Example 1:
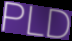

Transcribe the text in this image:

PLD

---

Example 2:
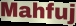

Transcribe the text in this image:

Mahfuj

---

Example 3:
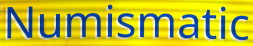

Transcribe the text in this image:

Numismatic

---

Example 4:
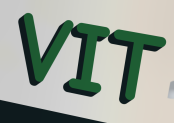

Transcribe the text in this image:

VIT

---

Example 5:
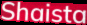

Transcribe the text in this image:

Shaista